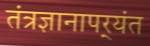
तंत्रज्ञानापर्यंत